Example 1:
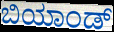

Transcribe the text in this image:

ಬಿಯಾಂಡ್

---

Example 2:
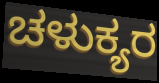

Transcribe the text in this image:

ಚಳುಕ್ಯರ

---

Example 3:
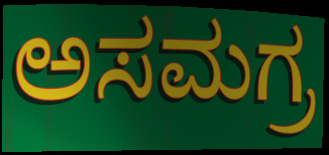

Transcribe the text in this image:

ಅಸಮಗ್ರ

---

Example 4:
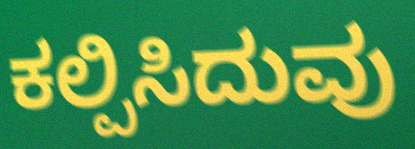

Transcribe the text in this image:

ಕಲ್ಪಿಸಿದುವು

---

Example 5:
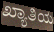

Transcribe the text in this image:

ಖ್ಯಾತಿಯ